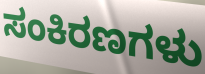
ಸಂಕಿರಣಗಳು